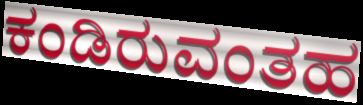
ಕಂಡಿರುವಂತಹ